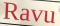
Ravu